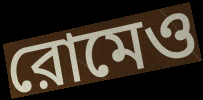
রোমেও